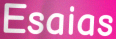
Esaias